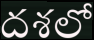
దశలో